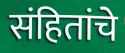
संहितांचे